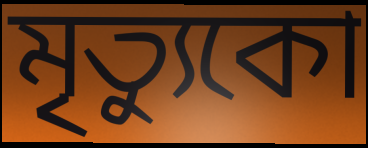
মৃত্যুকো